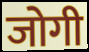
जोगी